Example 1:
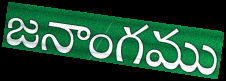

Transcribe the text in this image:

జనాంగము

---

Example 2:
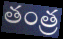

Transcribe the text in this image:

తంత్ర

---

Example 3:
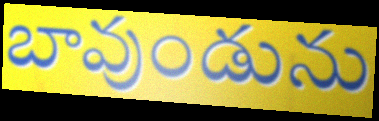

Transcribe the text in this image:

బావుండును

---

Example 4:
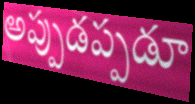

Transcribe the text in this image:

అప్పుడప్పడూ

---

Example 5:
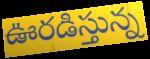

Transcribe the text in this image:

ఊరడిస్తున్న